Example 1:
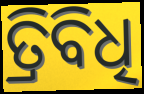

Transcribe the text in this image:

ତ୍ରିବିଧି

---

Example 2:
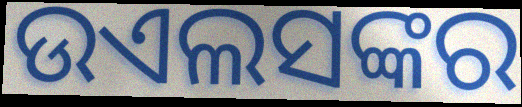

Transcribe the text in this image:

ଉଏଲସଙ୍କର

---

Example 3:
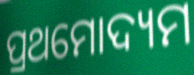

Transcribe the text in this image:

ପ୍ରଥମୋଦ୍ୟମ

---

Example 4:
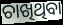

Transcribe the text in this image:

ଚାଖିଥିବା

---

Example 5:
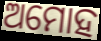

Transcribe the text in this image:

ଅମୋହ